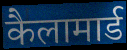
कैलामार्ड